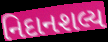
નિદાનશલ્ય